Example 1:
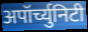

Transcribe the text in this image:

अपॉर्च्युनिटी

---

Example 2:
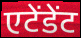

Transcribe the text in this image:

एटेंडेंट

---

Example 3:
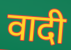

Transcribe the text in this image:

वादी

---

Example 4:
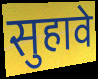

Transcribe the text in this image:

सुहावे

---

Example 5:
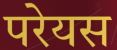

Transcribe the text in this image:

परेयस